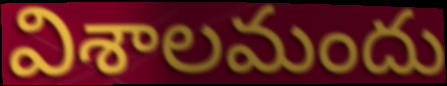
విశాలమందు